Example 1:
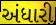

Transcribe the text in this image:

અંધારી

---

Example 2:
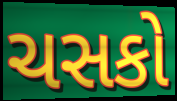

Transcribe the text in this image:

ચસકો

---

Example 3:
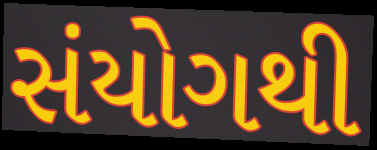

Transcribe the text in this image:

સંયોગથી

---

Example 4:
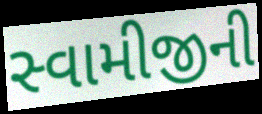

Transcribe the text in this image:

સ્વામીજીની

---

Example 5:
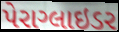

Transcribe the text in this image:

પેરાગ્લાઇડર